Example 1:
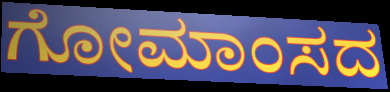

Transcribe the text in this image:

ಗೋಮಾಂಸದ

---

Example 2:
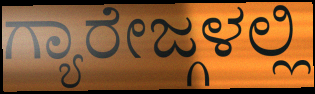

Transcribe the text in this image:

ಗ್ಯಾರೇಜ್ಗಳಲ್ಲಿ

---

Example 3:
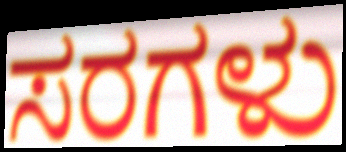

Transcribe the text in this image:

ಸರಗಳು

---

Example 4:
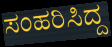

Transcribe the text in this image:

ಸಂಹರಿಸಿದ್ದ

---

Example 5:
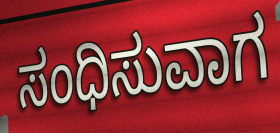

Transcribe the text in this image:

ಸಂಧಿಸುವಾಗ